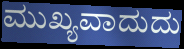
ಮುಖ್ಯವಾದುದು